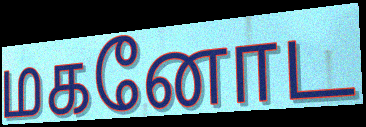
மகனோட